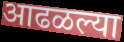
आढळल्या